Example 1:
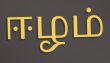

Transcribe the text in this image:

ஈழம்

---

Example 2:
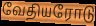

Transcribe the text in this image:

வேதியரோடு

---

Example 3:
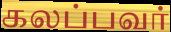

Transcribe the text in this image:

கலப்பவர்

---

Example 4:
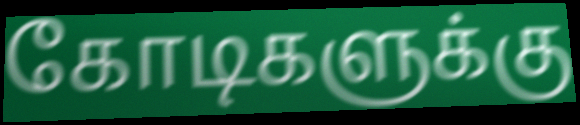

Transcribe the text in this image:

கோடிகளுக்கு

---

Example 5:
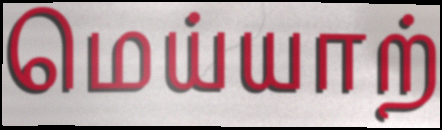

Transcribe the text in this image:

மெய்யாற்